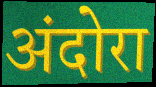
अंदोरा